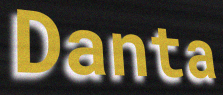
Danta